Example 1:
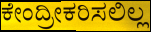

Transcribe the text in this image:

ಕೇಂದ್ರೀಕರಿಸಲಿಲ್ಲ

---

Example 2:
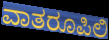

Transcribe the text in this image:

ವಾತರೂಪಿಲಿ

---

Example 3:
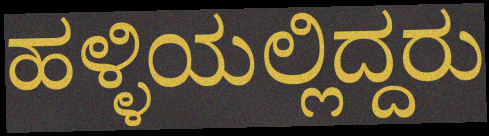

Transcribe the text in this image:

ಹಳ್ಳಿಯಲ್ಲಿದ್ದರು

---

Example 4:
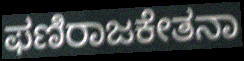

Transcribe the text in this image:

ಫಣಿರಾಜಕೇತನಾ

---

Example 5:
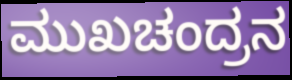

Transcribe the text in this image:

ಮುಖಚಂದ್ರನ